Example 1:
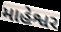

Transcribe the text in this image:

માહેશ્વર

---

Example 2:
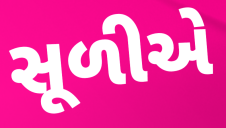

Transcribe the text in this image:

સૂળીએ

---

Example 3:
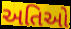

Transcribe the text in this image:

અતિઓ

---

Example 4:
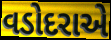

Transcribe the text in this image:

વડોદરાએ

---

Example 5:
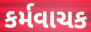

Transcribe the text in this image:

કર્મવાચક